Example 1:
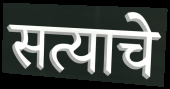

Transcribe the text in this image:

सत्याचे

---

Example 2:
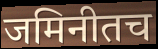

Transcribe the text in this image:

जमिनीतच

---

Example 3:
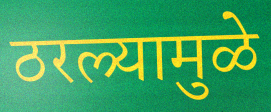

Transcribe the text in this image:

ठरल्यामुळे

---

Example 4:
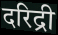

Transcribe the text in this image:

दरिद्री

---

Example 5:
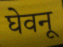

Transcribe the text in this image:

घेवनू